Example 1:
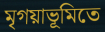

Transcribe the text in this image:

মৃগয়াভূমিতে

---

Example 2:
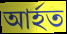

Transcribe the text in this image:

আর্হত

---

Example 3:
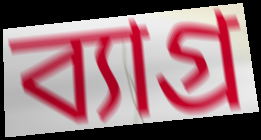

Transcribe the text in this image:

ব্যাগ্র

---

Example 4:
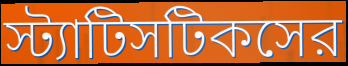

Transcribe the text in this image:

স্ট্যাটিসটিকসের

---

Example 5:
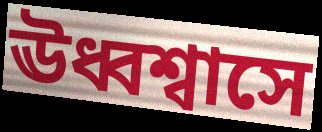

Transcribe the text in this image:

ঊধ্বশ্বাসে